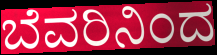
ಬೆವರಿನಿಂದ